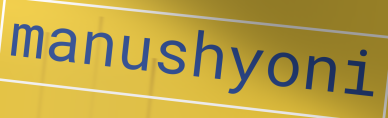
manushyoni